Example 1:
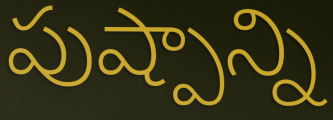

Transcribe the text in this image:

పుష్పాన్ని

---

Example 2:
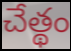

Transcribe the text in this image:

చేత్థం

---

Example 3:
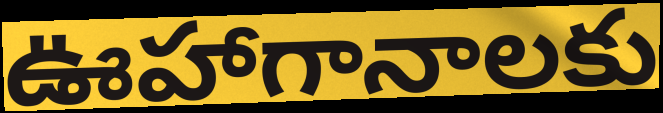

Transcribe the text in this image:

ఊహాగానాలకు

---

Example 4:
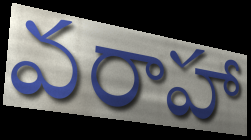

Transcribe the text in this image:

వరాహా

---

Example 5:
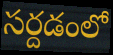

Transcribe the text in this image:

సర్దడంలో